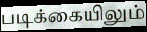
படிக்கையிலும்